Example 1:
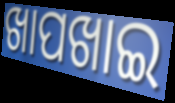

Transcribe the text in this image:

ଖାପଖାଇ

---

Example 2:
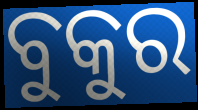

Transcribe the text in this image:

ବୁକୁର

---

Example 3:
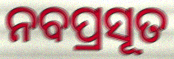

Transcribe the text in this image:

ନବପ୍ରସୂତ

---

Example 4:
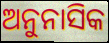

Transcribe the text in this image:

ଅନୁନାସିକ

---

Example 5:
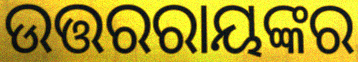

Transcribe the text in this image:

ଉତ୍ତରରାୟଙ୍କର